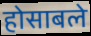
होसाबले